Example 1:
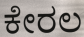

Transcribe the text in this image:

ಕೇರಲ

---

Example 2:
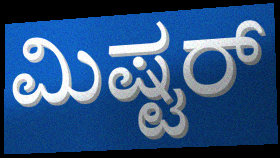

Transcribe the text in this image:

ಮಿಷ್ಟರ್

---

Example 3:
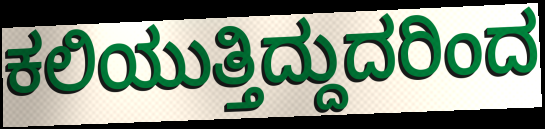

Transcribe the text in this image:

ಕಲಿಯುತ್ತಿದ್ದುದರಿಂದ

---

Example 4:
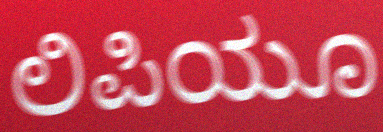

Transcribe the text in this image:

ಲಿಪಿಯೂ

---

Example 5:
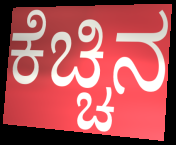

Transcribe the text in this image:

ಕೆಚ್ಚಿನ